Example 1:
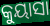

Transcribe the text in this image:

କୁୟାସା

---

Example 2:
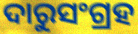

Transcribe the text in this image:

ଦାରୁସଂଗ୍ରହ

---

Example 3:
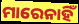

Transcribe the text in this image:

ମାରେନାହିଁ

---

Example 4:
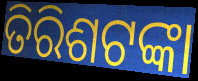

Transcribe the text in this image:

ତିରିଶଟଙ୍କା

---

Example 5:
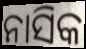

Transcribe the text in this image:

ନାସିକ